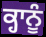
ਕ੍ਹਾਨੂੰ